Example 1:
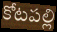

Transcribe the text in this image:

కోటపల్లి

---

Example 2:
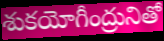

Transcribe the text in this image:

శుకయోగీంద్రునితో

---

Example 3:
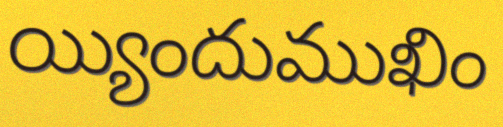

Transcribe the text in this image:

య్యిందుముఖిం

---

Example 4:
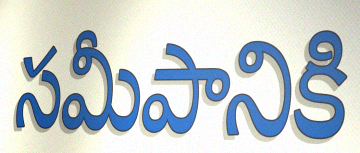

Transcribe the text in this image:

సమీపానికి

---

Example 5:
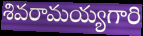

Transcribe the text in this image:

శివరామయ్యగారి